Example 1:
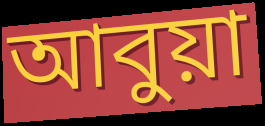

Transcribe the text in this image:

আবুয়া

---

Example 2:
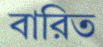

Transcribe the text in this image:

বারিত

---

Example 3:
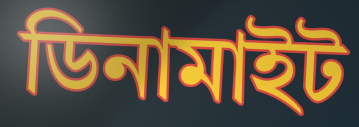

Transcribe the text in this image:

ডিনামাইট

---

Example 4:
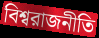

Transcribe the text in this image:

বিশ্বরাজনীতি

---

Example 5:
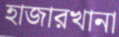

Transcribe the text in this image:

হাজারখানা